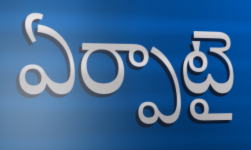
ఏర్పాటై